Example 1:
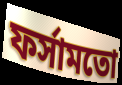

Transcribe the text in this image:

ফর্সামতো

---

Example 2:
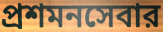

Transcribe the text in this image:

প্রশমনসেবার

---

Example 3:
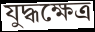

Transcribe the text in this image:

যুদ্ধক্ষেত্র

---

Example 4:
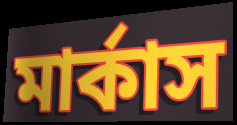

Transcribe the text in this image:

মার্কাস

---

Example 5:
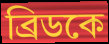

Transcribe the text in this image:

ব্রিডকে